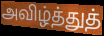
அவிழ்த்துத்